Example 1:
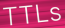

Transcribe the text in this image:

TTLs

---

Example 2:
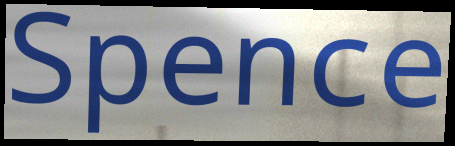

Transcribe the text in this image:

Spence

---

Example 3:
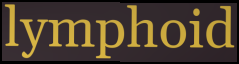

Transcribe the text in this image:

lymphoid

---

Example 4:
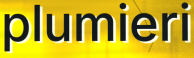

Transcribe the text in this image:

plumieri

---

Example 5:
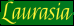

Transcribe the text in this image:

Laurasia